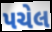
પચેલ